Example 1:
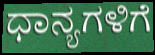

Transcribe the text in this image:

ಧಾನ್ಯಗಳಿಗೆ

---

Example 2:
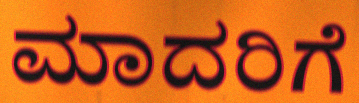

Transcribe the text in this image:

ಮಾದರಿಗೆ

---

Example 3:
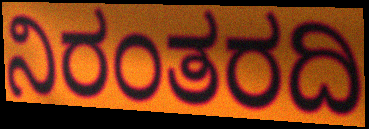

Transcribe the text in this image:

ನಿರಂತರದಿ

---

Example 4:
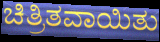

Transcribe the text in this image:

ಚಿತ್ರಿತವಾಯಿತು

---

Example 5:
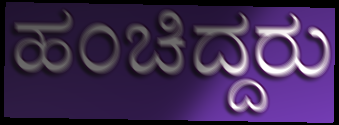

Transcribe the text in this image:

ಹಂಚಿದ್ದರು